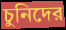
চুনিদের